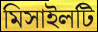
মিসাইলটি